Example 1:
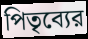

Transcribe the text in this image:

পিতৃব্যের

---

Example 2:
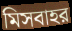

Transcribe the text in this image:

মিসবাহর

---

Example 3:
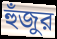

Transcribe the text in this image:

হুঁজুর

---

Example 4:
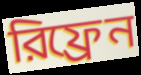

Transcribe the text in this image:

রিফ্রেন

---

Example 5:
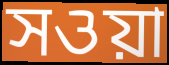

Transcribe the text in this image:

সওয়া